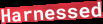
Harnessed